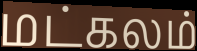
மட்கலம்